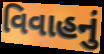
વિવાહનું